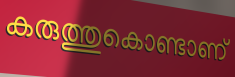
കരുത്തുകൊണ്ടാണ്